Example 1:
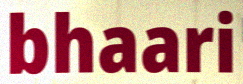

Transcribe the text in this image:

bhaari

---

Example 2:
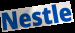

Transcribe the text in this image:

Nestle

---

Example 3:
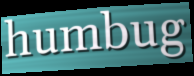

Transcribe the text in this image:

humbug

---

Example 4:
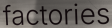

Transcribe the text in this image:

factories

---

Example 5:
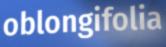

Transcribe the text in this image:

oblongifolia